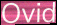
Ovid